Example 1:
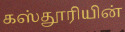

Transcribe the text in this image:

கஸ்தூரியின்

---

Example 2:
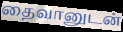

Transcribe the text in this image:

தைவானுடன்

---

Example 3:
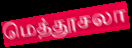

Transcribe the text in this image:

மெத்தூசலா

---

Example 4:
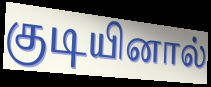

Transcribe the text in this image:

குடியினால்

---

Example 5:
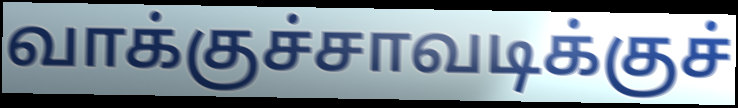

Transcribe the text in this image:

வாக்குச்சாவடிக்குச்